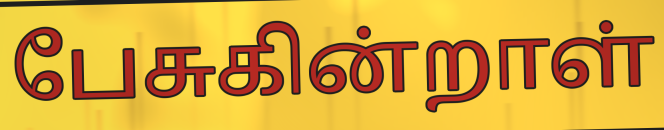
பேசுகின்றாள்